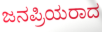
ಜನಪ್ರಿಯರಾದ